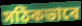
সঠিকভাবে